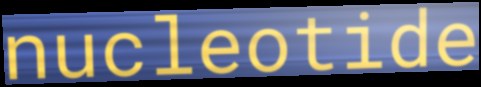
nucleotide